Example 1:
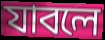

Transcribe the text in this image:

যাবলে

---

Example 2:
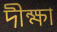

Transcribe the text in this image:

দীক্ষা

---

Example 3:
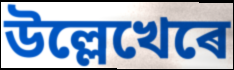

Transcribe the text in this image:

উল্লেখেৰে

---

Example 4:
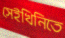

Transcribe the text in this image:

সেইখিনিতে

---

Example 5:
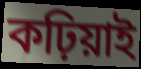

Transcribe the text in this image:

কঢ়িয়াই